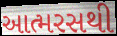
આત્મરસથી